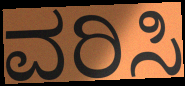
ವರಿಸಿ